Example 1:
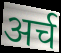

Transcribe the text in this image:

अर्च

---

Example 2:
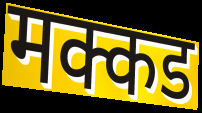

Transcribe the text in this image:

मक्कड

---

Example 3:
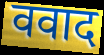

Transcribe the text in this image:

ववाद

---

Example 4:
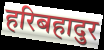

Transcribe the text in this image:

हरिबहादुर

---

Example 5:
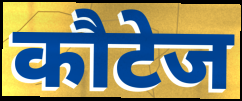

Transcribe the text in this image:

कौटेज